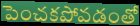
పెంచకపోవడంతో